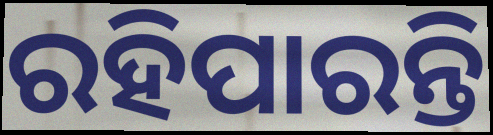
ରହିପାରନ୍ତି